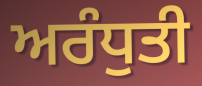
ਅਰੰਧੁਤੀ